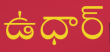
ఉధార్